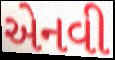
એનવી